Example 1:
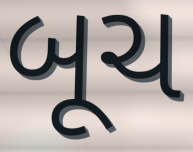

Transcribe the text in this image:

બૂચ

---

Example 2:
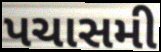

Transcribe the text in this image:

પચાસમી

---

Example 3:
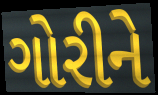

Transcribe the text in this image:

ગોરીને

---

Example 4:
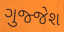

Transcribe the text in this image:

ગુજ્જેશ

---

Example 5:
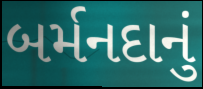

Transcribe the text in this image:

બર્મનદાનું